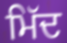
ਮਿੱਦ